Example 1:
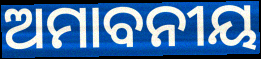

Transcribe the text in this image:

ଅମାବନୀୟ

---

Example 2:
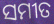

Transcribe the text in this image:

ସମୀତ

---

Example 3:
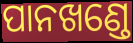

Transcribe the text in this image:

ପାନଖଣ୍ଡେ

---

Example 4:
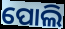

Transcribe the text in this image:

ପୋଲି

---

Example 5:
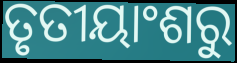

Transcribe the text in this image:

ତୃତୀୟାଂଶରୁ